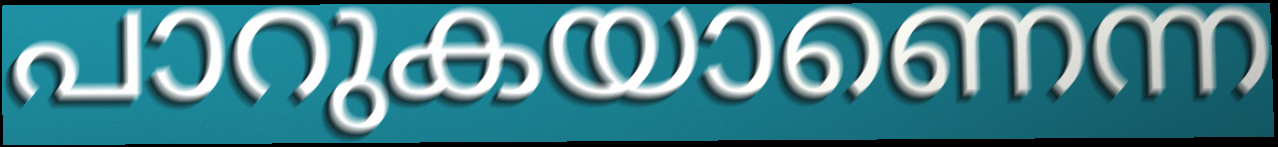
പാറുകയാണെന്ന